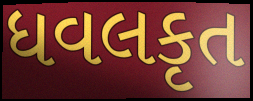
ધવલકૃત